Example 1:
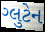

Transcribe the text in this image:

ગ્લુટેન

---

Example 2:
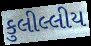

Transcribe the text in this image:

કુલીલ્લીય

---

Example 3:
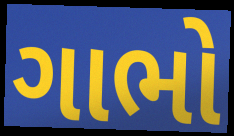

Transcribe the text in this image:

ગાભો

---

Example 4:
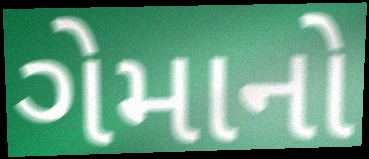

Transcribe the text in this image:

ગેમાનો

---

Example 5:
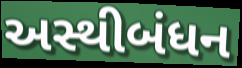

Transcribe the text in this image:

અસ્થીબંધન